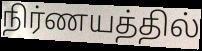
நிர்ணயத்தில்